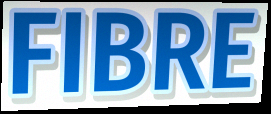
FIBRE